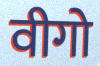
वीगो